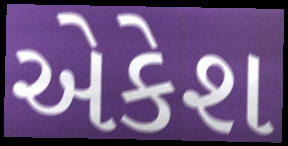
એકેશ